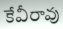
కేవీరావు